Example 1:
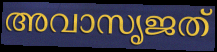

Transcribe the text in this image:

അവാസൃജത്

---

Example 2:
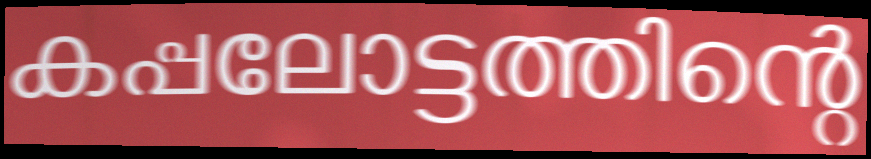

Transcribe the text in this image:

കപ്പലോട്ടത്തിന്റെ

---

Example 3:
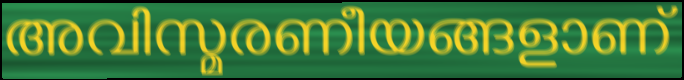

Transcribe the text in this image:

അവിസ്മരണീയങ്ങളാണ്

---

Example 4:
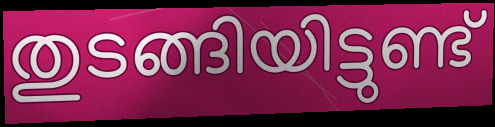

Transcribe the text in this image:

തുടങ്ങിയിട്ടുണ്ട്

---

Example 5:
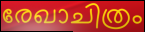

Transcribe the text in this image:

രേഖാചിത്രം